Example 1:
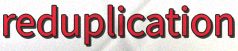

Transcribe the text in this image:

reduplication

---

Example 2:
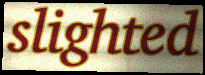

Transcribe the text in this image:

slighted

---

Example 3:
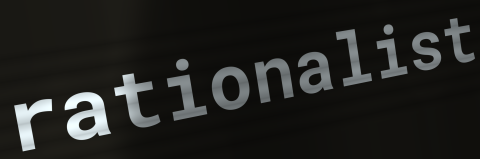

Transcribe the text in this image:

rationalist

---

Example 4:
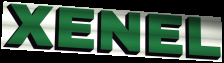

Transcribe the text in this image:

XENEL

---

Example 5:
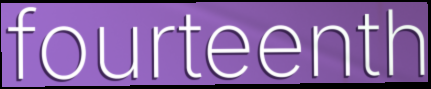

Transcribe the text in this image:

fourteenth